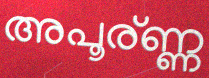
അപൂര്ണ്ണ